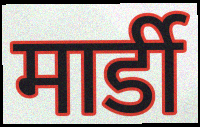
मार्डी